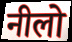
नीलो